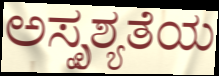
ಅಸ್ಪೃಶ್ಯತೆಯ